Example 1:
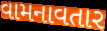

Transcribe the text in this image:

વામનાવતાર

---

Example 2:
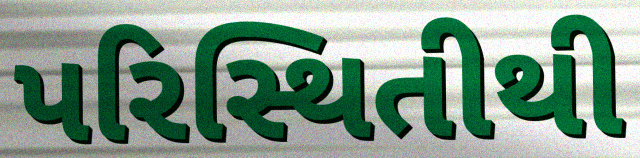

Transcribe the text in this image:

પરિસ્થિતીથી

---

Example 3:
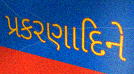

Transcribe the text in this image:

પ્રકરણાદિને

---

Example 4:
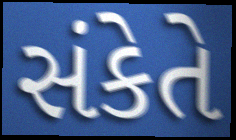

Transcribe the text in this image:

સંકેતે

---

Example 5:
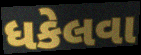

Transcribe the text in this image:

ધકેલવા